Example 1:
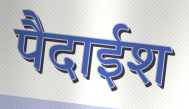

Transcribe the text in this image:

पैदाईश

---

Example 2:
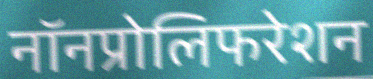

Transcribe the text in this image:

नॉनप्रोलिफरेशन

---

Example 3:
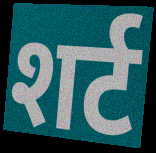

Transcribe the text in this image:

शर्ट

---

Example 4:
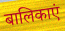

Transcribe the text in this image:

बालिकाएं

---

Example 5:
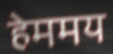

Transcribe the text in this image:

हेममय